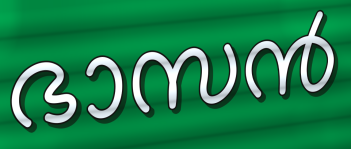
ഭാസൻ